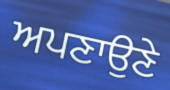
ਅਪਣਾਉਣੇ